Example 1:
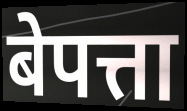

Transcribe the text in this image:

बेपत्ता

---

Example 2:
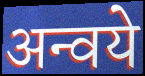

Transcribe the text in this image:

अन्वये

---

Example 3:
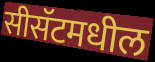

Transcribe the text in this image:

सीसॅटमधील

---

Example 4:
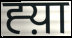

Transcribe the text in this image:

ह्य़ा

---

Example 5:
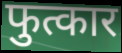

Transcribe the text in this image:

फुत्कार